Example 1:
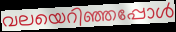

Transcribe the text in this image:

വലയെറിഞ്ഞപ്പോൾ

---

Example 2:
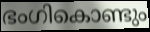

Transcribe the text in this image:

ഭംഗികൊണ്ടും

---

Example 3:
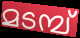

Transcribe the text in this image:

മടമ്പ്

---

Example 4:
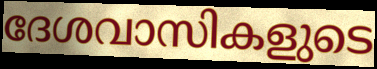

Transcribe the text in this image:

ദേശവാസികളുടെ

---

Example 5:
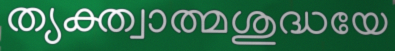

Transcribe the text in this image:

ത്യക്ത്വാത്മശുദ്ധയേ